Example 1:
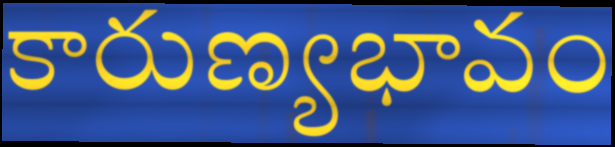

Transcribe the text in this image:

కారుణ్యభావం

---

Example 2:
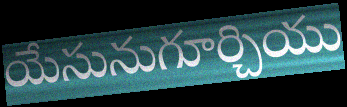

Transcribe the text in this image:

యేసునుగూర్చియు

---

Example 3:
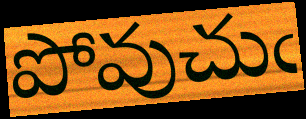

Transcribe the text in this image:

పోవుచుఁ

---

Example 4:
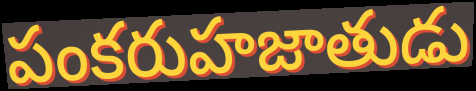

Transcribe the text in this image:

పంకరుహజాతుడు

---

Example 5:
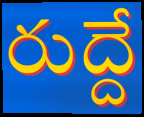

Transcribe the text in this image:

రుద్దే